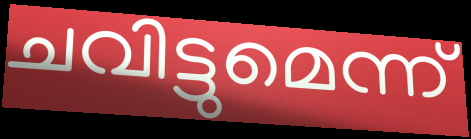
ചവിട്ടുമെന്ന്